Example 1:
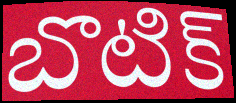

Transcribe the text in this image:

బొటిక్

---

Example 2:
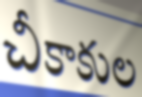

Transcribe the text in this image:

చీకాకుల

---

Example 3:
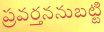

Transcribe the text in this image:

ప్రవర్తననుబట్టి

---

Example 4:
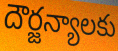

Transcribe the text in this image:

దౌర్జన్యాలకు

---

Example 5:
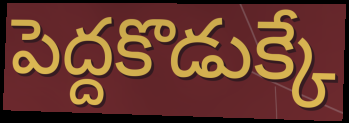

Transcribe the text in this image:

పెద్దకొడుక్కే